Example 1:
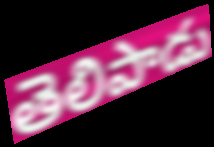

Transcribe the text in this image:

తెలిపాడు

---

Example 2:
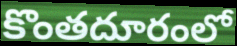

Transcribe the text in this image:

కొంతదూరంలో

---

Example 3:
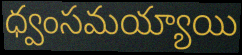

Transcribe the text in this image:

ధ్వంసమయ్యాయి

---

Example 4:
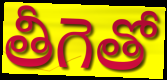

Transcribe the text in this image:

తీగెతో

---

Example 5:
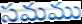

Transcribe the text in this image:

సమము